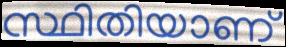
സ്ഥിതിയാണ്